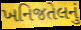
ખનિજતેલનું